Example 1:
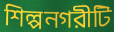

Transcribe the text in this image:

শিল্পনগরীটি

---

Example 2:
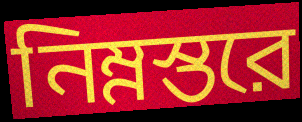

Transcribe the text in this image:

নিম্নস্তরে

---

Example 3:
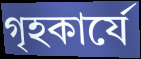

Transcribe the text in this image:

গৃহকার্যে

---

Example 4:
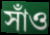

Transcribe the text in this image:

সাঁও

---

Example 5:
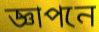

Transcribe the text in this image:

জ্ঞাপনে